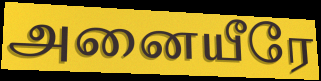
அனையீரே